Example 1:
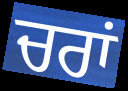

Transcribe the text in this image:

ਚਰਾਂ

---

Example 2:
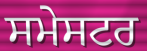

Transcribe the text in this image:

ਸਮੇਸਟਰ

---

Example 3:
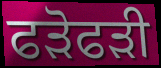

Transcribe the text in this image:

ਫੜੋਫੜੀ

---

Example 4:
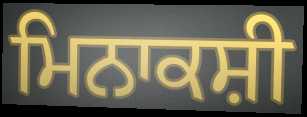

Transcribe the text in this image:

ਮਿਨਾਕਸ਼ੀ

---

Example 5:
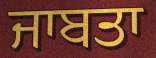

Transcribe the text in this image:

ਜਾਬਤਾ